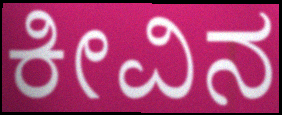
ಕೀವಿನ